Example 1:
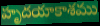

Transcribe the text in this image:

హృదయాకాశము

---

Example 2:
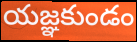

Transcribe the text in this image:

యజ్ఞకుండం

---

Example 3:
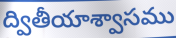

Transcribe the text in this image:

ద్వితీయాశ్వాసము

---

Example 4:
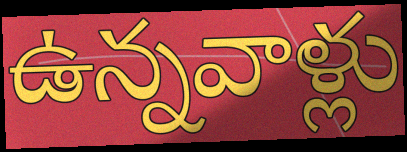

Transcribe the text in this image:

ఉన్నవాళ్లు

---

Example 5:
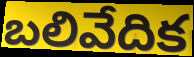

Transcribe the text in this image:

బలివేదిక